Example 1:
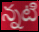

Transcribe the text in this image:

న్నటి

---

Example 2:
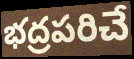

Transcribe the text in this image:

భద్రపరిచే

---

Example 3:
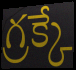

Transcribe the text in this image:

గ్రక్కే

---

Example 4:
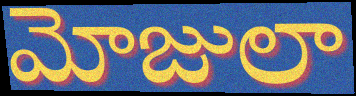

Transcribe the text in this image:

మోజులా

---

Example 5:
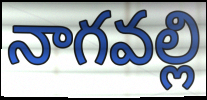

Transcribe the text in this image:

నాగవల్లి